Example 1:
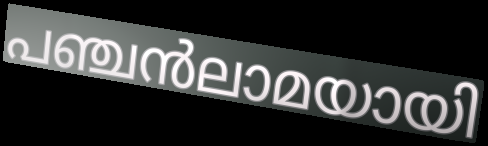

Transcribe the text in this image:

പഞ്ചൻലാമയായി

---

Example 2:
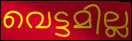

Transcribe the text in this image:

വെട്ടമില്ല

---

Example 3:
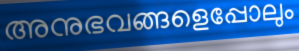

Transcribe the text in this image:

അനുഭവങ്ങളെപ്പോലും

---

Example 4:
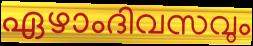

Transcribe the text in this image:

ഏഴാംദിവസവും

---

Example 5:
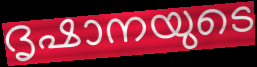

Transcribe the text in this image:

ദൃഷാനയുടെ